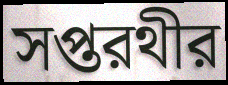
সপ্তরথীর